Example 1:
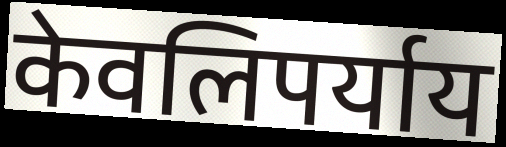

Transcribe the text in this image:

केवलिपर्याय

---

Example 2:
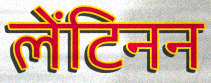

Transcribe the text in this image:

लेंटिनन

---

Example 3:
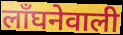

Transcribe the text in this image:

लाँघनेवाली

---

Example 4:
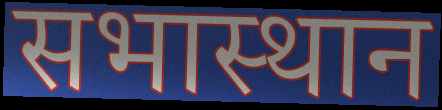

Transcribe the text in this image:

सभास्थान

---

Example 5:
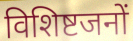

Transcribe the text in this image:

विशिष्टजनों